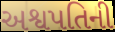
અશ્વપતિની